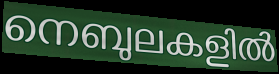
നെബുലകളിൽ